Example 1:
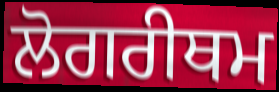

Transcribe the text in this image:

ਲੋਗਰੀਥਮ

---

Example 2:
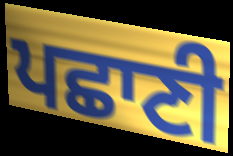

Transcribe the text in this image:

ਪਛਾਣੀ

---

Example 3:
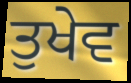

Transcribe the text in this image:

ਤੁਖੇਵ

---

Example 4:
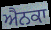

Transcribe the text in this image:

ਐਨਕਾ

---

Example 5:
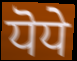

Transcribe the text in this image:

ਧੋਧੇ